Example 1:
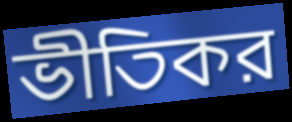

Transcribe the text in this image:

ভীতিকর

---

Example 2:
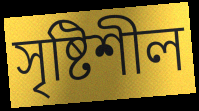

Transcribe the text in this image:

সৃষ্টিশীল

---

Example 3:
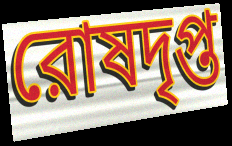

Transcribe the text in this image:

রোষদৃপ্ত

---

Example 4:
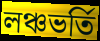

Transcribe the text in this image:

লঞ্চভর্তি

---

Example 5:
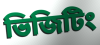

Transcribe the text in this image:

ভিজিটিং